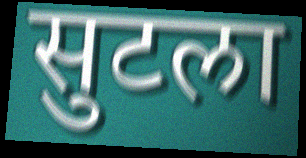
सुटला